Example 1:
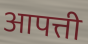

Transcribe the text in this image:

आपत्ती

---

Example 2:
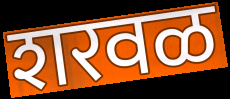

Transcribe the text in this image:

शरवळ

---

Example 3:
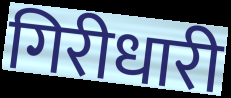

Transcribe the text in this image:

गिरीधारी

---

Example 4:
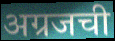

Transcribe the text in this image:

अग्रजची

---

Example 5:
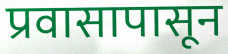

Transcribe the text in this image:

प्रवासापासून